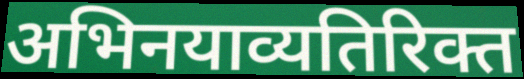
अभिनयाव्यतिरिक्त